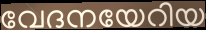
വേദനയേറിയ